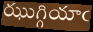
ఝుగ్గియాఁ